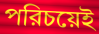
পরিচয়েই